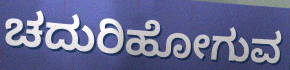
ಚದುರಿಹೋಗುವ